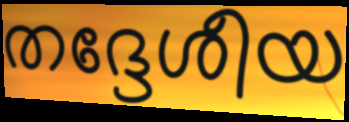
തദ്ദേശീയ